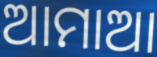
ଆମାଆ